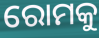
ରୋମକୁ